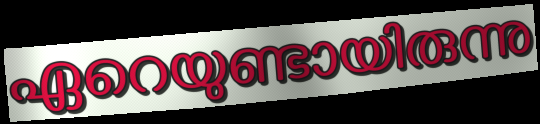
ഏറെയുണ്ടായിരുന്നു